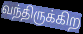
வந்திருக்கிற